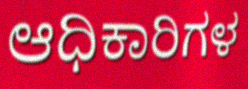
ಆಧಿಕಾರಿಗಳ